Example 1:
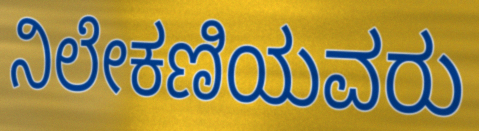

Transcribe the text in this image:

ನಿಲೇಕಣಿಯವರು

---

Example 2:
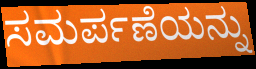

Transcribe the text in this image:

ಸಮರ್ಪಣೆಯನ್ನು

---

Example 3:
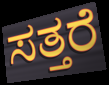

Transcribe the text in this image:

ಸತ್ತರೆ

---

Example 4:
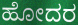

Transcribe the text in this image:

ಹೋದರ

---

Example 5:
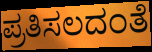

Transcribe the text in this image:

ಪ್ರತಿಸಲದಂತೆ